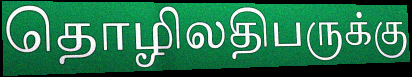
தொழிலதிபருக்கு